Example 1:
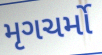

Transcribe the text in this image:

મૃગચર્મો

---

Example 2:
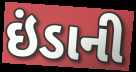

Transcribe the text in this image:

ઇંડાની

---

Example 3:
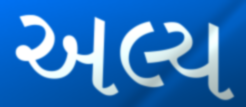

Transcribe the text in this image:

અલ્ય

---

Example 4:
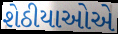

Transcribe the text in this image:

શેઠીયાઓએ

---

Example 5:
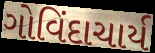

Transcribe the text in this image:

ગોવિંદાચાર્ય